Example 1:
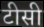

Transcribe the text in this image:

टीसी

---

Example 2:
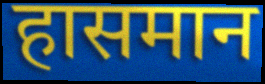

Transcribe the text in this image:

हासमान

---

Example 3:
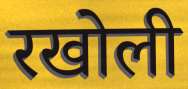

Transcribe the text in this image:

रखोली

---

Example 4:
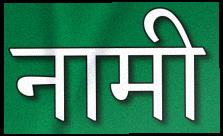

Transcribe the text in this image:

नामी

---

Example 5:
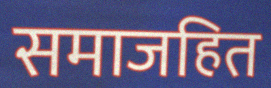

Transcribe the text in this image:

समाजहित